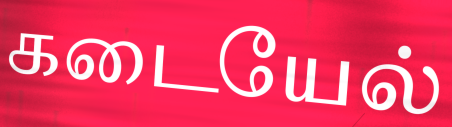
கடையேல்